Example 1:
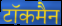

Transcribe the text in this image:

टॉकमैन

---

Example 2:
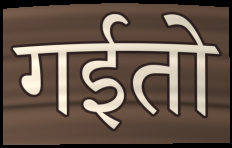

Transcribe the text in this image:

गईतो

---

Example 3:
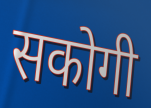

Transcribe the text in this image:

सकोगी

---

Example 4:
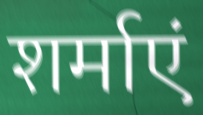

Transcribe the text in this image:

शर्माएं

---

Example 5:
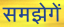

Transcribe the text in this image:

समझेगें